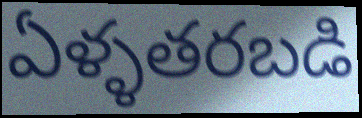
ఏళ్ళతరబడి